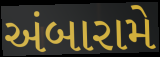
અંબારામે